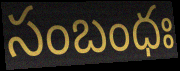
సంబంధః